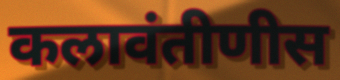
कलावंतीणीस